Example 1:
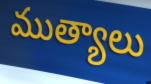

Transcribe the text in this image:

ముత్యాలు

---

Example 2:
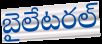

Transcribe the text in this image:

బైలేటరల్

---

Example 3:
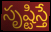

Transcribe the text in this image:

సృష్టిస్తే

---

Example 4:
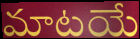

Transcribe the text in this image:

మాటయే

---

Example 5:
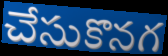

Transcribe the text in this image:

చేసుకొనగ